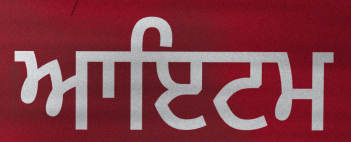
ਆਇਟਮ